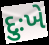
દુઃખે